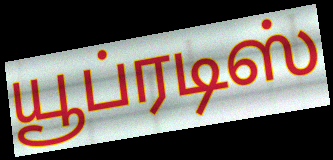
யூப்ரடிஸ்